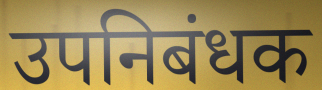
उपनिबंधक